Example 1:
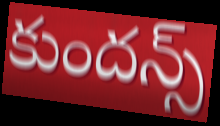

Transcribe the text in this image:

కుందన్స్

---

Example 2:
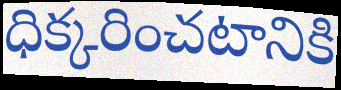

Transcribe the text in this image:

ధిక్కరించటానికి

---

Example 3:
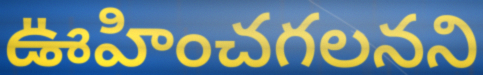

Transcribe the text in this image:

ఊహించగలనని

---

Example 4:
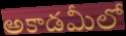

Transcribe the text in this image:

అకాడమీలో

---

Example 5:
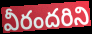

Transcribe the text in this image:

వీరందరిని